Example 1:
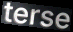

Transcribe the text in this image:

terse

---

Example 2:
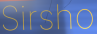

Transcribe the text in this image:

Sirsho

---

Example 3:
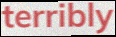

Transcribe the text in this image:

terribly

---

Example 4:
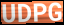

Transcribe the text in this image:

UDPG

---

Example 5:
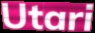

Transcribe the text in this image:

Utari